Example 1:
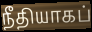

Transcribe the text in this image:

நீதியாகப்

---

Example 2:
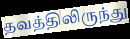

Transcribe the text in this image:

தவத்திலிருந்து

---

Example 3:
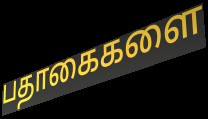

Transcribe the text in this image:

பதாகைகளை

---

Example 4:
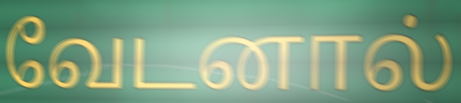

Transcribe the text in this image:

வேடனால்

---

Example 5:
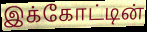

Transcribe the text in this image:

இக்கோட்டின்